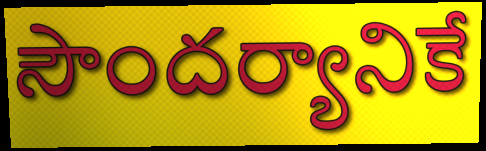
సౌందర్యానికే